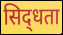
सिद्‌धता